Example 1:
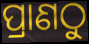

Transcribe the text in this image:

ପ୍ରାଣଠୁ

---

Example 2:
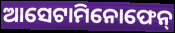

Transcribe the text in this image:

ଆସେଟାମିନୋଫେନ୍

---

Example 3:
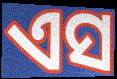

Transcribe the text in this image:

ଏସ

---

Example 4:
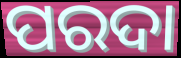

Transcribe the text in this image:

ପରଦା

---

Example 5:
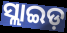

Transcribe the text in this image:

ସ୍ଲାଇଡ଼